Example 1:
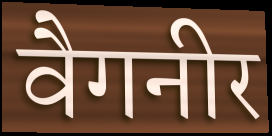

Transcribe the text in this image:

वैगनीर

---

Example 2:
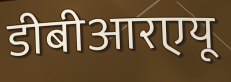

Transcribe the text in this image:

डीबीआरएयू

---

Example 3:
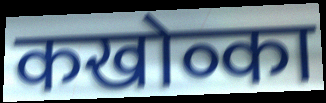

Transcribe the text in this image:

कखोव्का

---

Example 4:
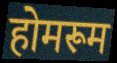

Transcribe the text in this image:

होमरूम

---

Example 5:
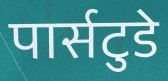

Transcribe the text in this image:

पार्सटुडे